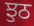
ਝੁਠ